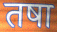
तषा